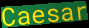
Caesar